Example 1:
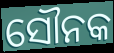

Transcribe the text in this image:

ସୌନକ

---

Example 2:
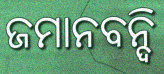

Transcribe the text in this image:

ଜମାନବନ୍ଦି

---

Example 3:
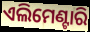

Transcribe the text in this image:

ଏଲିମେଣ୍ଟାରି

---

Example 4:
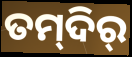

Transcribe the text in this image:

ତମ୍‍ଦିର୍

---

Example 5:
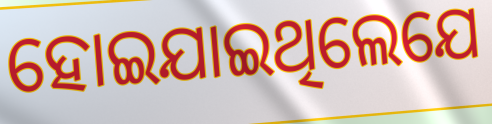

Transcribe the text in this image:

ହୋଇଯାଇଥିଲେଯେ